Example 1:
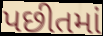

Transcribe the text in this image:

પછીતમાં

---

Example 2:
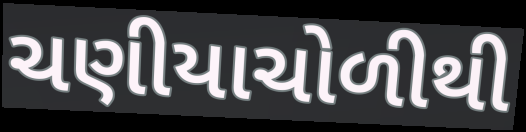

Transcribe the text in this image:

ચણીયાચોળીથી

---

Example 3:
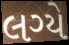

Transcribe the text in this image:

લગ્યે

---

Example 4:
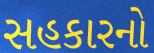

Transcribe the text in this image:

સહકારનો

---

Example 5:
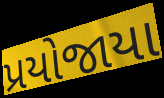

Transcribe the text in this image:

પ્રયોજાયા